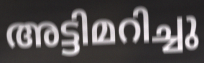
അട്ടിമറിച്ചു